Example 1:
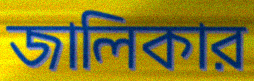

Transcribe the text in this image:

জালিকার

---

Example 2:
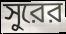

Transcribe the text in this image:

সুরের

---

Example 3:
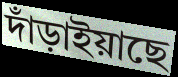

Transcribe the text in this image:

দাঁড়াইয়াছে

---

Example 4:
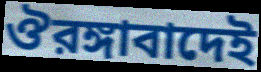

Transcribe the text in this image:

ঔরঙ্গাবাদেই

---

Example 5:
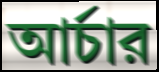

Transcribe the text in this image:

আর্চার